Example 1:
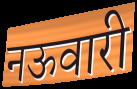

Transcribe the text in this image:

नऊवारी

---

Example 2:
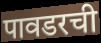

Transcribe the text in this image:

पावडरची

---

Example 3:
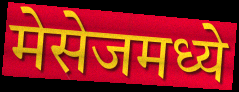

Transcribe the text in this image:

मेसेजमध्ये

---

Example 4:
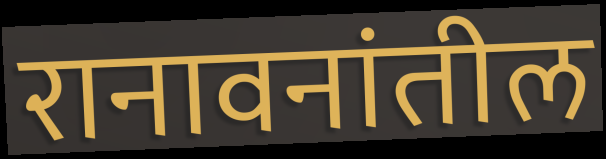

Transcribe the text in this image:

रानावनांतील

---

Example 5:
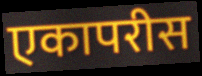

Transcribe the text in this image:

एकापरीस